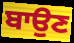
ਬਾਉਣ